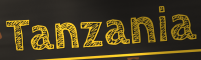
Tanzania